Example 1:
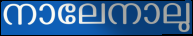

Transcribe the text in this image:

നാലേനാലു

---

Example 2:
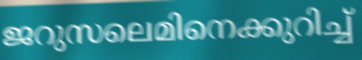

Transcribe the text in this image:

ജറുസലെമിനെക്കുറിച്ച്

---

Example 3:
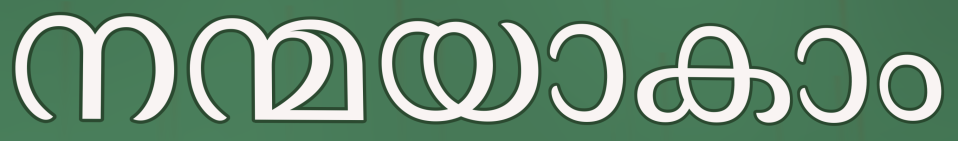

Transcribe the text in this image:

നന്മയാകാം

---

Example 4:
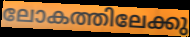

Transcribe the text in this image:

ലോകത്തിലേക്കു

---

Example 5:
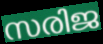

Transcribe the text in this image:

സരിജ